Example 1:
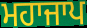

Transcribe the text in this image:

ਮਹਾਜਾਪ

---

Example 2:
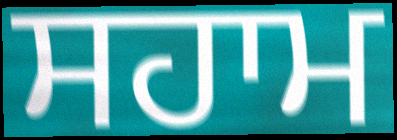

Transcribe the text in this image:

ਸਹਾਮ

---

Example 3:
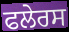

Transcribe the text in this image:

ਫਲੇਰਸ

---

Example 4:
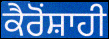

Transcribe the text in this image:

ਕੈਰੋਂਸ਼ਾਹੀ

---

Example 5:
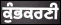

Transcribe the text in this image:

ਕੁੰਭਕਰਣੀ